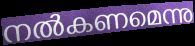
നൽകണമെന്നു